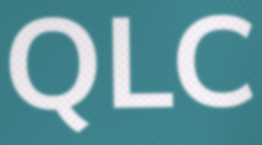
QLC